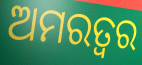
ଅମରତ୍ୱର